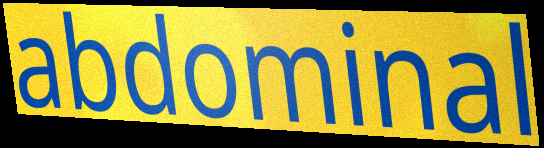
abdominal